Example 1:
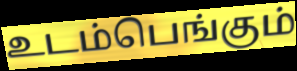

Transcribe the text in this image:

உடம்பெங்கும்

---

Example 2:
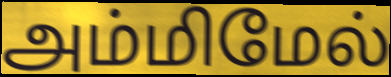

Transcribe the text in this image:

அம்மிமேல்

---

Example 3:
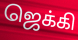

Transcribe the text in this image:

ஜெக்கி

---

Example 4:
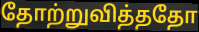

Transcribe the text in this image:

தோற்றுவித்ததோ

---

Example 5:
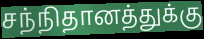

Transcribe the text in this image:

சந்நிதானத்துக்கு